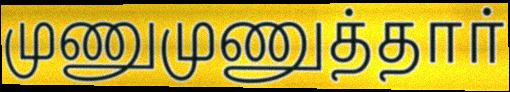
முணுமுணுத்தார்